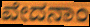
ವೇದನಾಂ